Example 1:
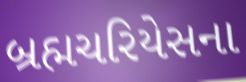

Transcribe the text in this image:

બ્રહ્મચરિયેસના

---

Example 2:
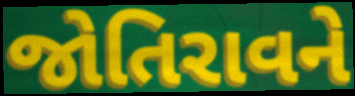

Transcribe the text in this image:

જોતિરાવને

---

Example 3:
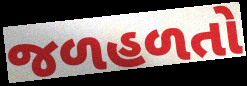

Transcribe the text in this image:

જળહળતો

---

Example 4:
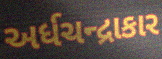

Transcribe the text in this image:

અર્ધચન્દ્રાકાર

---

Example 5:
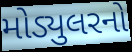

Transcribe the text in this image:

મોડ્યુલરનો